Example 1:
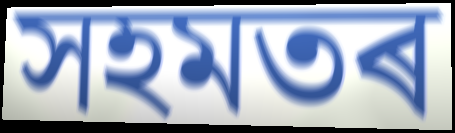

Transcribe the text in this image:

সহমতৰ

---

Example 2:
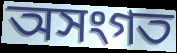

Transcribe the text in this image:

অসংগত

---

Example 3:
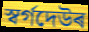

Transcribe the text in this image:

স্বৰ্গদেউৰ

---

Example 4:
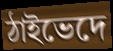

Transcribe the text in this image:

ঠাইভেদে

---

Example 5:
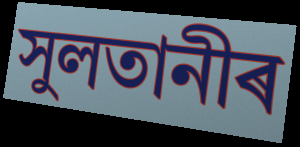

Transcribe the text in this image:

সুলতানীৰ